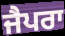
ਜੈਪਰਾ